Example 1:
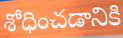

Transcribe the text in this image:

శోధించడానికి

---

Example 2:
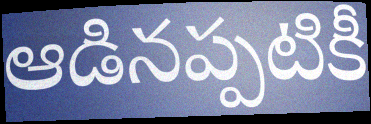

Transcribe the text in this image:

ఆడినప్పటికీ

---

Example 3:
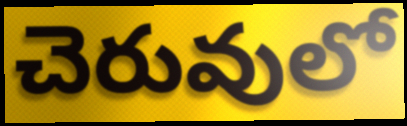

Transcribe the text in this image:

చెరువులో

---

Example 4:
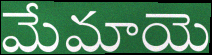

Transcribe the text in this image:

మేమాయె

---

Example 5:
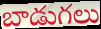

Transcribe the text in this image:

బాడుగలు